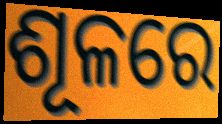
ଶୂଳରେ